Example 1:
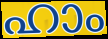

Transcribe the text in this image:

ഹാം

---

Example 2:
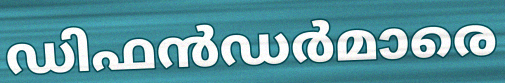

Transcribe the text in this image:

ഡിഫൻഡർമാരെ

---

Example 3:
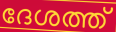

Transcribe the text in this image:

ദേശത്ത്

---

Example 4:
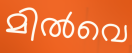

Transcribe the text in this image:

മിൽവെ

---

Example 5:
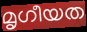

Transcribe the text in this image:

മൃഗീയത